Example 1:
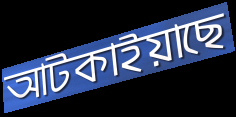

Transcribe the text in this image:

আটকাইয়াছে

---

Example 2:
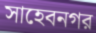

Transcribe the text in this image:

সাহেবনগর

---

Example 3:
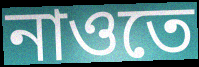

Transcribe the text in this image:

নাওতে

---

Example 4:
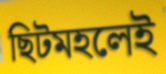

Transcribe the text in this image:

ছিটমহলেই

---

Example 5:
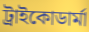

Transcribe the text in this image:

ট্রাইকোডার্মা